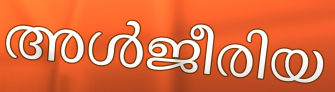
അൾജീരിയ